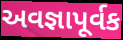
અવજ્ઞાપૂર્વક